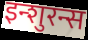
इन्शुरन्स